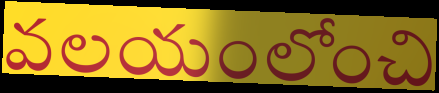
వలయంలోంచి